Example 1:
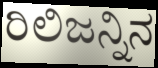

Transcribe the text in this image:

ರಿಲಿಜನ್ನಿನ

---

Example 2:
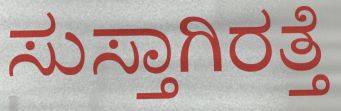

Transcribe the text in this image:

ಸುಸ್ತಾಗಿರತ್ತೆ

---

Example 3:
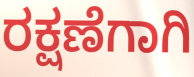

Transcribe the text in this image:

ರಕ್ಷಣೆಗಾಗಿ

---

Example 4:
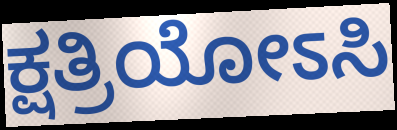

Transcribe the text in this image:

ಕ್ಷತ್ರಿಯೋಽಸಿ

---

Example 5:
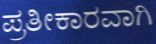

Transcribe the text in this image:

ಪ್ರತೀಕಾರವಾಗಿ